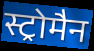
स्ट्रोमैन